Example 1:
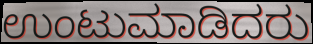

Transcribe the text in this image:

ಉಂಟುಮಾಡಿದರು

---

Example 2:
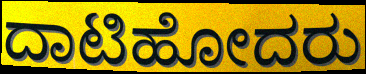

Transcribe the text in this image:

ದಾಟಿಹೋದರು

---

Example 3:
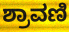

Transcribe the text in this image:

ಶ್ರಾವಣಿ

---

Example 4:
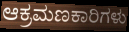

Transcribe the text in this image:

ಆಕ್ರಮಣಕಾರಿಗಳು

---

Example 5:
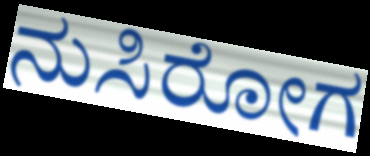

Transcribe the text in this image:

ನುಸಿರೋಗ